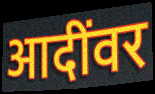
आदींवर